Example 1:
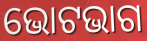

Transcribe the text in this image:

ଭୋଟଭାଗ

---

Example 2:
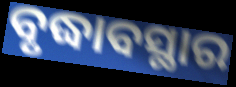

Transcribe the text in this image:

ବୃଦ୍ଧାବସ୍ଥାର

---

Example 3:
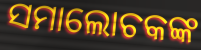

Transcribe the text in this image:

ସମାଲୋଚକଙ୍କ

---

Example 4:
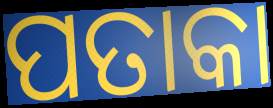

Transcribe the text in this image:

ପତାକା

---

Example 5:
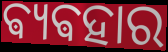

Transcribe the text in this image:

ଵ୍ଯଵହାର